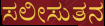
ಸಲೀಸುತನ